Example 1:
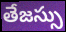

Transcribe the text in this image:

తేజస్సు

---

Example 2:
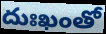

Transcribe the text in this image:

దుఃఖంతో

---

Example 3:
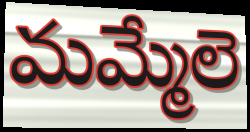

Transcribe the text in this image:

మమ్మేలె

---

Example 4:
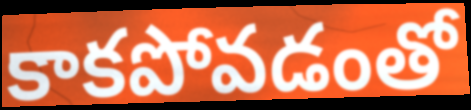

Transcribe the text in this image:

కాకపోవడంతో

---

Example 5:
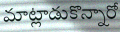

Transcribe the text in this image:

మాట్లాడుకొన్నారో